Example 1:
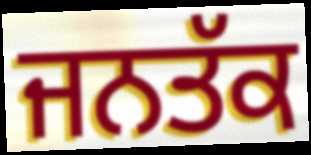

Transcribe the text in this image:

ਜਨਤੱਕ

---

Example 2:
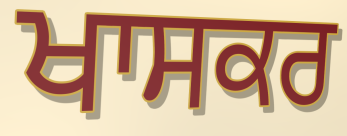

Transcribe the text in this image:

ਖਾਸਕਰ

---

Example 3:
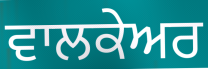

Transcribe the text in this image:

ਵਾਲਕੇਅਰ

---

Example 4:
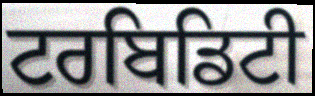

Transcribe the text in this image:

ਟਰਬਿਡਿਟੀ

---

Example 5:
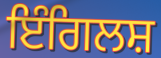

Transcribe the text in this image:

ਇੰਗਿਲਸ਼